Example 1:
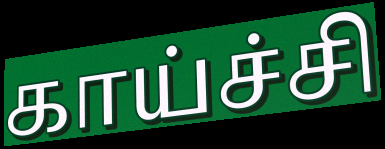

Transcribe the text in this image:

காய்ச்சி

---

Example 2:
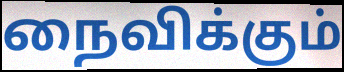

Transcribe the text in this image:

நைவிக்கும்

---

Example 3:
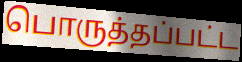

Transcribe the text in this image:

பொருத்தப்பட்ட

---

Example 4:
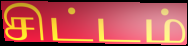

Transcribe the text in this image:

சிட்டம்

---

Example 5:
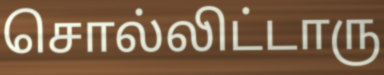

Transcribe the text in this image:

சொல்லிட்டாரு